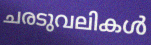
ചരടുവലികൾ